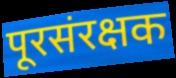
पूरसंरक्षक